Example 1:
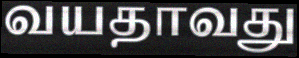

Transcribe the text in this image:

வயதாவது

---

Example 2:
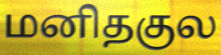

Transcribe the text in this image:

மனிதகுல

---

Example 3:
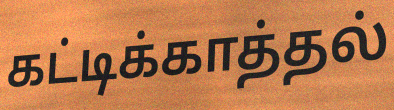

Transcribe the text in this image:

கட்டிக்காத்தல்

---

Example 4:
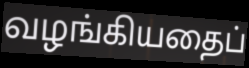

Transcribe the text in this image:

வழங்கியதைப்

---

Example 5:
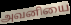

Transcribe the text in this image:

அவனியை